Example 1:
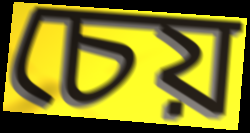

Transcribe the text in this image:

চেয়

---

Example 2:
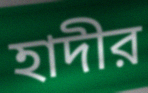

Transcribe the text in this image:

হাদীর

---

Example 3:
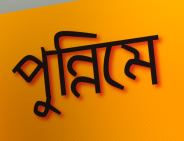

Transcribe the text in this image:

পুন্নিমে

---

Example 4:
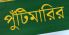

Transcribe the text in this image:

পুঁটিমারির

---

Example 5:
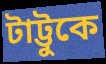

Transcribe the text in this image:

টাট্টুকে